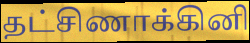
தட்சிணாக்கினி